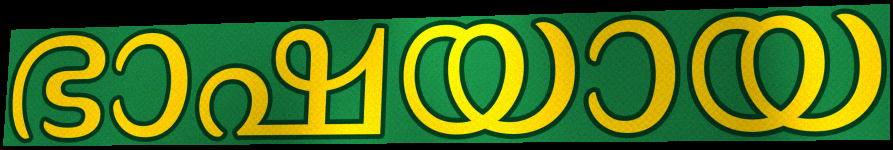
ഭാഷയായ